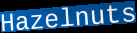
Hazelnuts